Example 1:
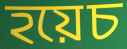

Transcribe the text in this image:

হয়েচ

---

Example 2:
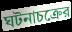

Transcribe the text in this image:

ঘটনাচক্রের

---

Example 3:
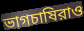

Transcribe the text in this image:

ভাগচাষিরাও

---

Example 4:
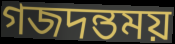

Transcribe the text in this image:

গজদন্তময়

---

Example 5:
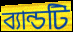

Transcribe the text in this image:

ব্যান্ডটি